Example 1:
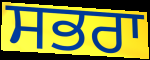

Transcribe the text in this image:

ਸਭਰਾ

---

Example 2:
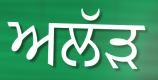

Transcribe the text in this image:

ਅਲੱੜ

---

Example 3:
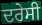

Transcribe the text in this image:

ਦਰੇਸੀ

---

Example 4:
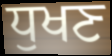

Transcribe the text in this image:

ਧੁਖਣ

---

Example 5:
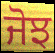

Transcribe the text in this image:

ਜੋਝ